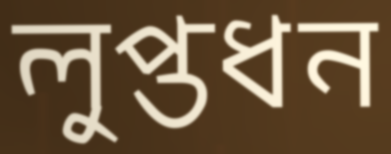
লুপ্তধন